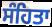
ਸੰਹਿਤਾ